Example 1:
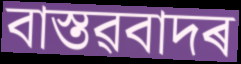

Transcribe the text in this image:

বাস্তৱবাদৰ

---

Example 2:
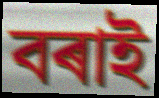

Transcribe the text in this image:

বৰাই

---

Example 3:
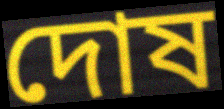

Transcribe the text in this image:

দোষ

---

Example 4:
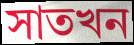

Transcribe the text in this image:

সাতখন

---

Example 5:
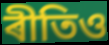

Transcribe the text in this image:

ৰীতিও